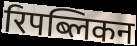
रिपब्लिकन